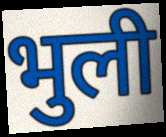
भुली